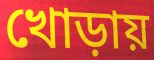
খোড়ায়